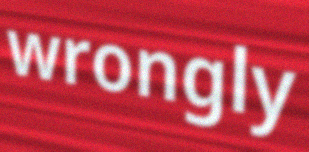
wrongly